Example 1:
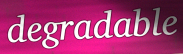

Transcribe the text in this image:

degradable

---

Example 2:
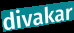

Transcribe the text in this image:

divakar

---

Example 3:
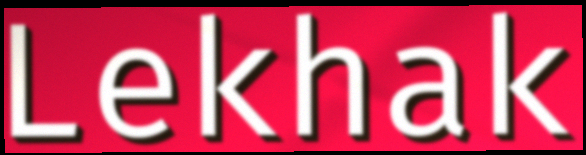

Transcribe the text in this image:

Lekhak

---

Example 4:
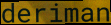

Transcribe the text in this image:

deriman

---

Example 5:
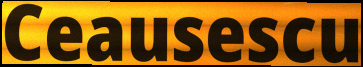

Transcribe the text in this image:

Ceausescu